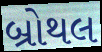
બ્રોથલ